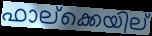
ഫാല്ക്കെയില്